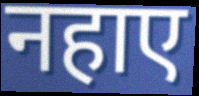
नहाए